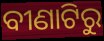
ବୀଣାଟିରୁ